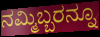
ನಮ್ಮಿಬ್ಬರನ್ನೂ